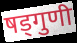
षड्गुणी